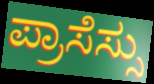
ಪ್ರಾಸೆಸ್ಸು